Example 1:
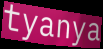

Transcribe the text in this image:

tyanya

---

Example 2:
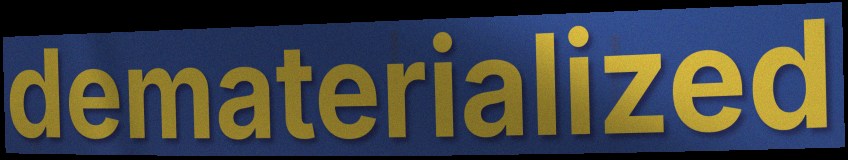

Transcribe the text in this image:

dematerialized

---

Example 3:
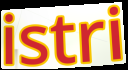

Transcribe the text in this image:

istri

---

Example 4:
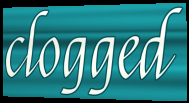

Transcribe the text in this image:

clogged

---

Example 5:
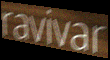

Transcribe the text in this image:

ravivar